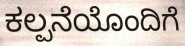
ಕಲ್ಪನೆಯೊಂದಿಗೆ